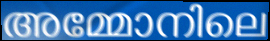
അമ്മോനിലെ